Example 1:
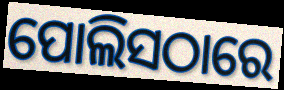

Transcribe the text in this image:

ପୋଲିସଠାରେ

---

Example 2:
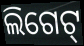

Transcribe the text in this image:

ଲିଗେଟ୍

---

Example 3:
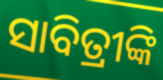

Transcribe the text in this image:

ସାବିତ୍ରୀଙ୍କି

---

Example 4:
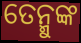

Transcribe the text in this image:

ତେନ୍ମୁଙ୍କ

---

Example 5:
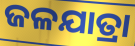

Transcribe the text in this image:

ଜଳଯାତ୍ରା